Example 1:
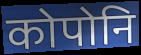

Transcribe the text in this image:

कोपोनि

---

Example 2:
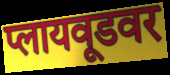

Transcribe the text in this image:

प्लायवूडवर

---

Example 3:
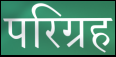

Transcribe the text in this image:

परिग्रह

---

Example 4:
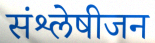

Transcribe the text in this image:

संश्लेषीजन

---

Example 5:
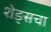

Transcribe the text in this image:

शेड्सचा